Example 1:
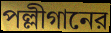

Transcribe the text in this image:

পল্লীগানের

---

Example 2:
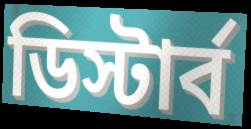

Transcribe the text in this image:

ডিস্টার্ব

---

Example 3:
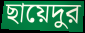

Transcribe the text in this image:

ছায়েদুর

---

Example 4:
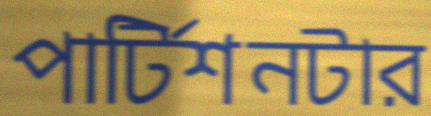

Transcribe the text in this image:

পার্টিশনটার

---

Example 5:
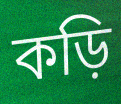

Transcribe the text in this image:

কড়ি